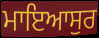
ਮਾਇਆਸੁਰ